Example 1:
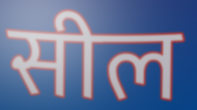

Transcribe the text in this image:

सील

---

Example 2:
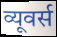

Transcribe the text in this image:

व्यूवर्स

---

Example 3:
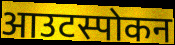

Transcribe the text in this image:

आउटस्पोकन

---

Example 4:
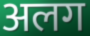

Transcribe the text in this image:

अलग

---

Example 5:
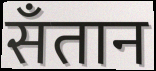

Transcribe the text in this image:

सँतान